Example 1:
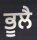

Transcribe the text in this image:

ਭੂਲੈ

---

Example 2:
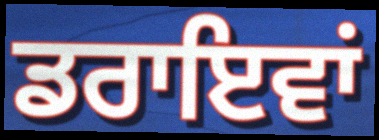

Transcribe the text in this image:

ਡਰਾਇਵਾਂ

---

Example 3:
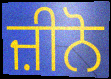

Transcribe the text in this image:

ਜ਼ੀਨੋ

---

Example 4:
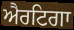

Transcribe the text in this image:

ਐਰਟਿਗਾ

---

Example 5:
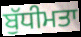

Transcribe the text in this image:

ਬੁੱਧੀਮਤਾ